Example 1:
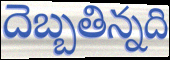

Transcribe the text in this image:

దెబ్బతిన్నది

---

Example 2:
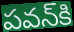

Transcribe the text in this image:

పవన్‌కి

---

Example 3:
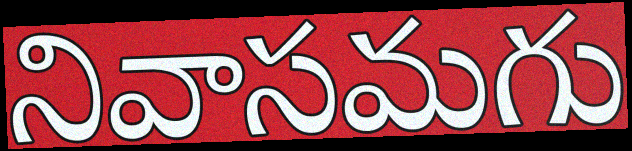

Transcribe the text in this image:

నివాసమగు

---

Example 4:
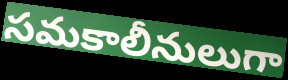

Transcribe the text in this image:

సమకాలీనులుగా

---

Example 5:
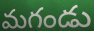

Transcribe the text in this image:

మగండు